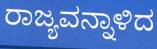
ರಾಜ್ಯವನ್ನಾಳಿದ